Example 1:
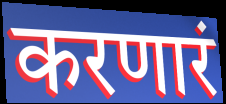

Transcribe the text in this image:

करणारं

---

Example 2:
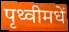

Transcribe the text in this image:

पृथ्वीमधें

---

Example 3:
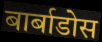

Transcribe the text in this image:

बार्बाडोस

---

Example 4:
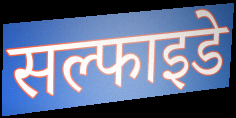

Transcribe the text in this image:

सल्फाइडे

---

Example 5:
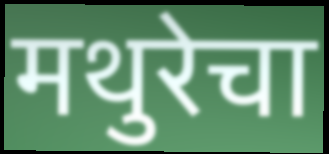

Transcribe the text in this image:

मथुरेचा